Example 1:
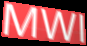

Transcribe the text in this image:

MWI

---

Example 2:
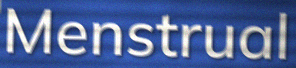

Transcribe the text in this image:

Menstrual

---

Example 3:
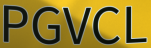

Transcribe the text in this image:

PGVCL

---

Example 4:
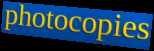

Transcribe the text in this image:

photocopies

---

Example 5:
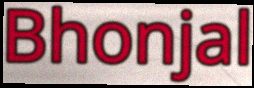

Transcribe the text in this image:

Bhonjal